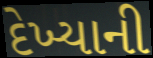
દેખ્યાની